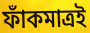
ফাঁকমাত্রই